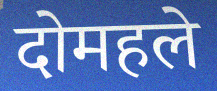
दोमहले